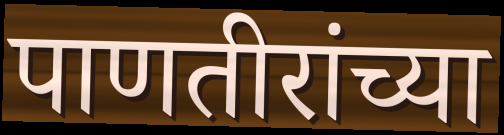
पाणतीरांच्या